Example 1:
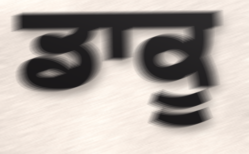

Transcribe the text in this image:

ਡਾਕੂ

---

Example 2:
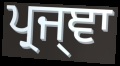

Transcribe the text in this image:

ਪ੍ਰਜ੍ਞਾ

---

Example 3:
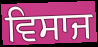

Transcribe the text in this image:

ਵਿਸਾਜ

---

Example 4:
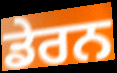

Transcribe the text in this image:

ਡੇਰਨ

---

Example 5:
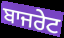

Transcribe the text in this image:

ਬਾਜਰੇਟ